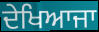
ਦੇਖਿਆਜਾ